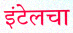
इंटेलचा